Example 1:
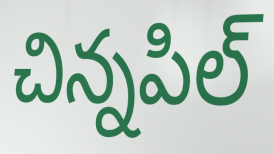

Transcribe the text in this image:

చిన్నపిల్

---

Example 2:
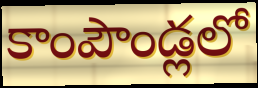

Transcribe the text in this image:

కాంపౌండ్లలో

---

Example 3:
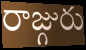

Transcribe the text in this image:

రాజ్గురు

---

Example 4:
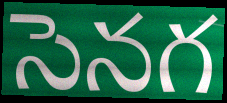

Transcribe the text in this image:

సెనగ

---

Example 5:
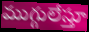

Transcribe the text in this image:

ముగ్గులేస్తూ